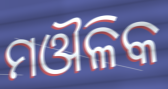
ମଔଳିକ